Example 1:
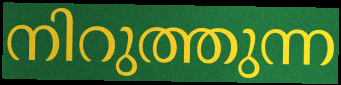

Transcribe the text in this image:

നിറുത്തുന്ന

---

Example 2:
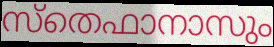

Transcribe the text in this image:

സ്തെഫാനാസും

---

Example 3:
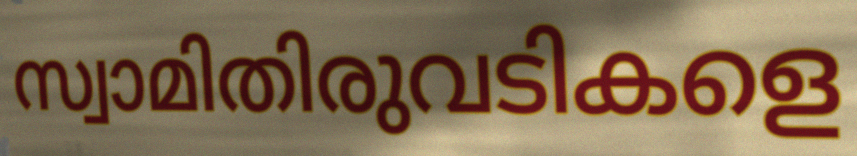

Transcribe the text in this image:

സ്വാമിതിരുവടികളെ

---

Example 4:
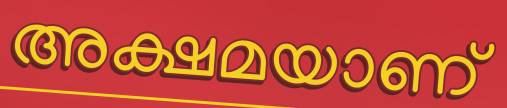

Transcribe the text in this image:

അക്ഷമയാണ്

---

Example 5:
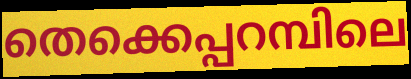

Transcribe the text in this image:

തെക്കെപ്പറമ്പിലെ